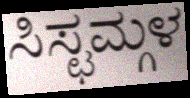
ಸಿಸ್ಟಮ್ಗಳ